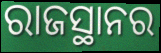
ରାଜସ୍ଥାନର